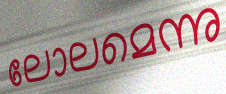
ലോലമെന്നു